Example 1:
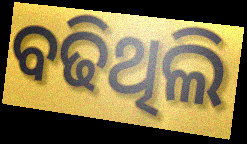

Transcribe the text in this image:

ବଢିଥିଲି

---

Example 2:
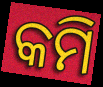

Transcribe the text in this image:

କମି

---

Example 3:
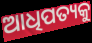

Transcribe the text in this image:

ଆଧିପତ୍ୟକୁ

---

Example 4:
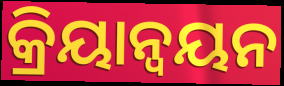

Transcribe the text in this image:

କ୍ରିୟାନ୍ଵୟନ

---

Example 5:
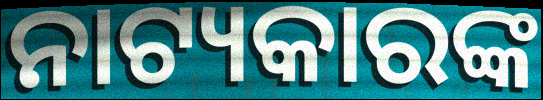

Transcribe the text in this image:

ନାଟ୍ୟକାରଙ୍କ